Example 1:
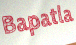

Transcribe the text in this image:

Bapatla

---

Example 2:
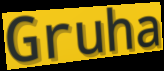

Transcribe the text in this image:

Gruha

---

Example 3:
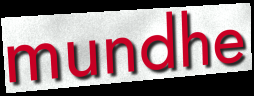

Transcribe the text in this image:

mundhe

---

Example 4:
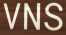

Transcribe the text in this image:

VNS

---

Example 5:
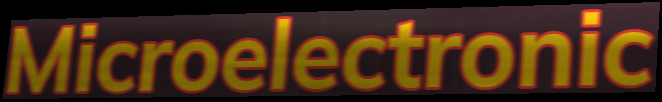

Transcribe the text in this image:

Microelectronic